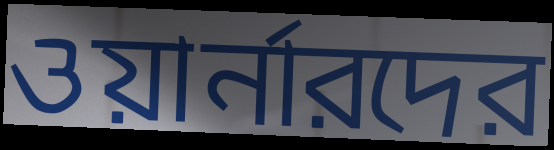
ওয়ার্নারদের